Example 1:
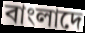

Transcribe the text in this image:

বাংলাদে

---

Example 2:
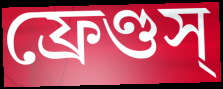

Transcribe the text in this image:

ফ্রেণ্ডস্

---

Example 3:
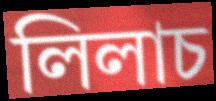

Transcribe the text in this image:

লিলাচ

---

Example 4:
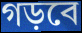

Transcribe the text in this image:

গড়বে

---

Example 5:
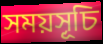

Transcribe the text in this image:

সময়সূচি